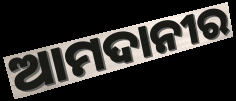
ଆମଦାନୀର